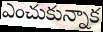
ఎంచుకున్నాక